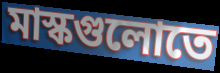
মাস্কগুলোতে